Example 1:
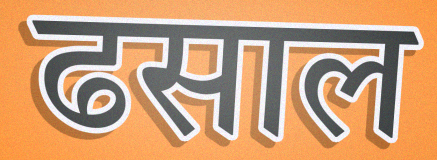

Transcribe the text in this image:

ढसाल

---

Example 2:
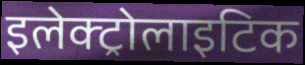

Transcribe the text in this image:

इलेक्ट्रोलाइटिक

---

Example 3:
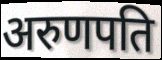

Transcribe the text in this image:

अरुणपति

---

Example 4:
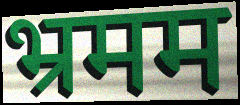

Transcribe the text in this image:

भ्रमम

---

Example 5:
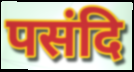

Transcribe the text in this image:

पसंदि